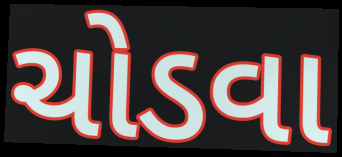
ચોડવા